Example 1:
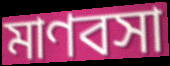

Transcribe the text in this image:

মাণবসা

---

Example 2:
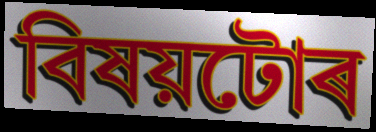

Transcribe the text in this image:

বিষয়টোৰ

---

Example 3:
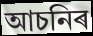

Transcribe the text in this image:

আচনিৰ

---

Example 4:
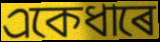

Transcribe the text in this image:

একেধাৰে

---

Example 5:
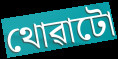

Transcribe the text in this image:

থোৱাটো